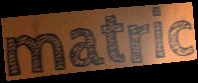
matric